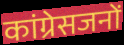
कांग्रेसजनों